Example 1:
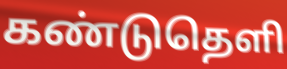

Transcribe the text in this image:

கண்டுதெளி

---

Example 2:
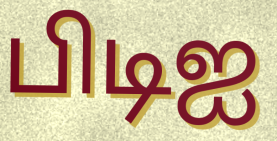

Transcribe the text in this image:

பிடிஐ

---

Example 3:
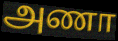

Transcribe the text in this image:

அணா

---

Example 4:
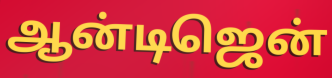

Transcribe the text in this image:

ஆன்டிஜென்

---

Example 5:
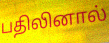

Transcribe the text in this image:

பதிலினால்